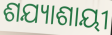
ଶଯ୍ୟାଶାୟୀ